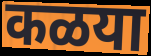
कळया